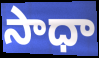
సాధా